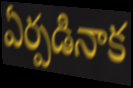
ఏర్పడినాక